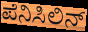
ಪೆನಿಸಿಲಿನ್